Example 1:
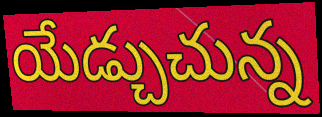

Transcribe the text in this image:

యేడ్చుచున్న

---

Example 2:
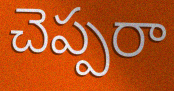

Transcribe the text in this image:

చెప్పరా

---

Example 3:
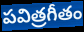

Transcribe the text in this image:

పవిత్రగీతం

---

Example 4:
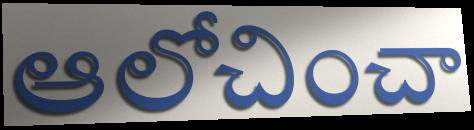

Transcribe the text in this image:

ఆలోచించా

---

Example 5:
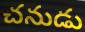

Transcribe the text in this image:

చనుడు